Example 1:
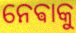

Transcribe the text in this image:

ନେଵାକୁ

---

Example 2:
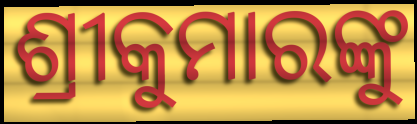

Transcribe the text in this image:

ଶ୍ରୀକୁମାରଙ୍କୁ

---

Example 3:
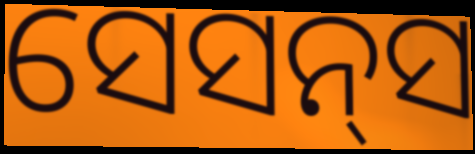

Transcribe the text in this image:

ସେସନ୍‌ସ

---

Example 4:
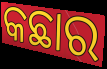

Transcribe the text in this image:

କଛାର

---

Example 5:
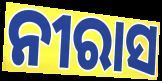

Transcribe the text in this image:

ନୀରାସ